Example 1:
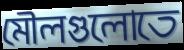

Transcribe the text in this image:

মৌলগুলোতে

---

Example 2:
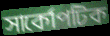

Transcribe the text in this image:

সার্কোপটিক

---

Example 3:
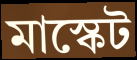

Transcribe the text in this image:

মাস্কেট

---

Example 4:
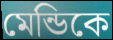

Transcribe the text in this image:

মেন্ডিকে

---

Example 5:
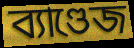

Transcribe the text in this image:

ব্যাণ্ডেজ